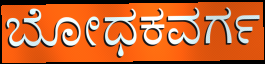
ಬೋಧಕವರ್ಗ